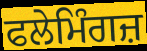
ਫਲੇਮਿੰਗਜ਼